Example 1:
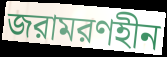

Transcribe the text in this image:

জরামরণহীন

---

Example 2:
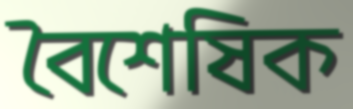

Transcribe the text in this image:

বৈশেষিক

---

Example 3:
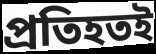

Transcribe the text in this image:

প্রতিহতই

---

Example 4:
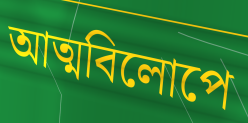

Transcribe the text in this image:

আত্মবিলোপে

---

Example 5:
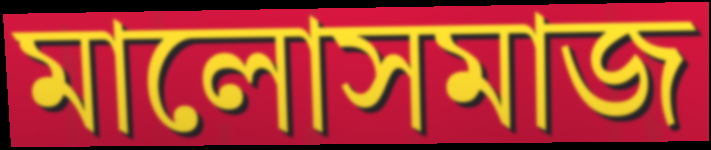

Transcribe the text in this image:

মালোসমাজ